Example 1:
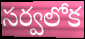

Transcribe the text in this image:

సర్వలోక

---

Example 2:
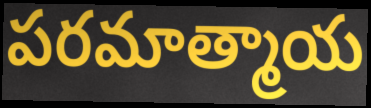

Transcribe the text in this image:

పరమాత్మాయ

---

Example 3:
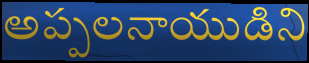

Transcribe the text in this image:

అప్పలనాయుడిని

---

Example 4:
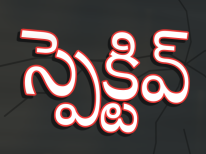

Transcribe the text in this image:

స్పెక్టివ్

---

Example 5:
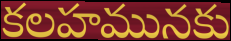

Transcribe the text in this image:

కలహమునకు